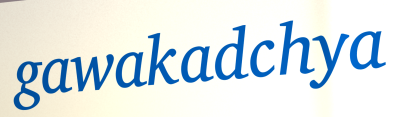
gawakadchya